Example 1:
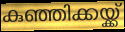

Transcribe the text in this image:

കുഞ്ഞിക്കയ്ക്ക്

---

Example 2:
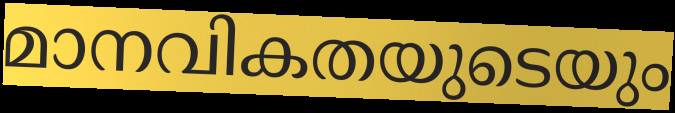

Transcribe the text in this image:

മാനവികതയുടെയും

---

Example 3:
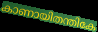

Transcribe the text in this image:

കാണായിതന്തികേ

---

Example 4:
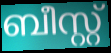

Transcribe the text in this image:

ബീസ്റ്റ്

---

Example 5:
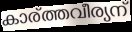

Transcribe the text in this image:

കാര്ത്തവീര്യന്